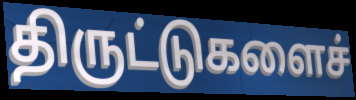
திருட்டுகளைச்